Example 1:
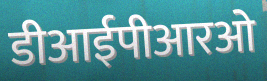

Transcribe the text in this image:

डीआईपीआरओ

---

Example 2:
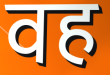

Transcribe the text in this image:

वह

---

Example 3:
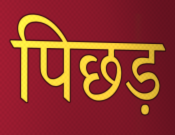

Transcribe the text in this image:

पिछड़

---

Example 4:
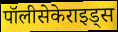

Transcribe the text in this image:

पॉलीसेकेराइड्स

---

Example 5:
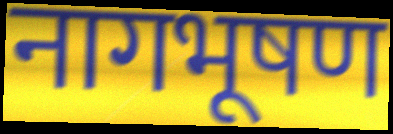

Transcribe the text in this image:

नागभूषण